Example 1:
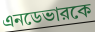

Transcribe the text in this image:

এনডেভারকে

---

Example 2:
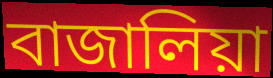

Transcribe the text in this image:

বাজালিয়া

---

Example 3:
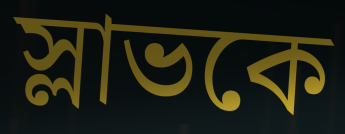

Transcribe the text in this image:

স্লাভকে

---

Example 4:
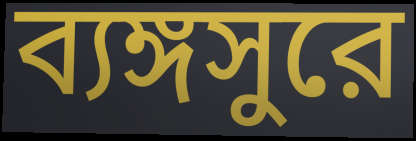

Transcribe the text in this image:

ব্যঙ্গসুরে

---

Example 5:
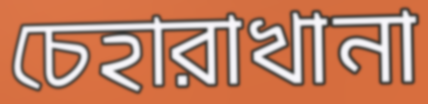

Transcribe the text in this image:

চেহারাখানা